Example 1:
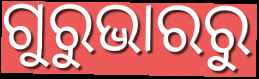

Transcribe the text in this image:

ଗୁରୁଭାରରୁ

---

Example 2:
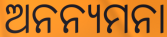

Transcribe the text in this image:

ଅନନ୍ୟମନା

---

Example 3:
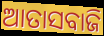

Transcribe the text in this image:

ଆତାସବାଜି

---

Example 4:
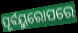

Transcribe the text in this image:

ପୂର୍ବୟୁରୋପରେ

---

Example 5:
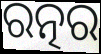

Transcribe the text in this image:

ରତ୍ନର